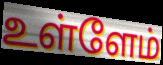
உள்ளேம்